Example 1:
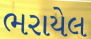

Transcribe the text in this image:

ભરાયેલ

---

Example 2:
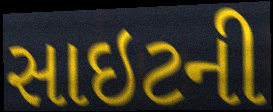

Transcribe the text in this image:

સાઇટની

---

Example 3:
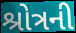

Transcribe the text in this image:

શ્રોત્રની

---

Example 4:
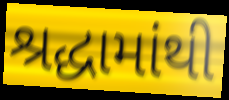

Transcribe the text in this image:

શ્રદ્ધામાંથી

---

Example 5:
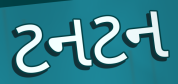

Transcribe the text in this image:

ટનટન